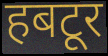
हबटूर